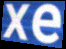
xe